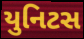
યુનિટસ